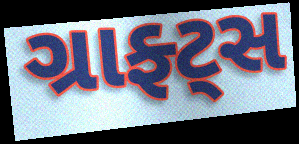
ગ્રાફ્ટ્સ